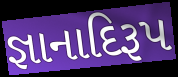
જ્ઞાનાદિરૂપ